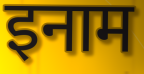
इनाम